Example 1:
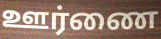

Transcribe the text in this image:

ஊர்ணை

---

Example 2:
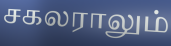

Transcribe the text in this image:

சகலராலும்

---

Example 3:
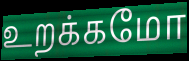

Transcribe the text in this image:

உறக்கமோ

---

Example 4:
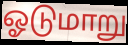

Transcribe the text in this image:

ஓடுமாறு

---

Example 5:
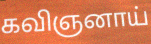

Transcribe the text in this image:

கவிஞனாய்